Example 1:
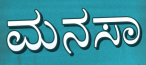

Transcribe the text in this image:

ಮನಸಾ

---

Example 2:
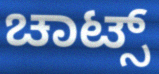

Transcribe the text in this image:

ಚಾಟ್ಸ್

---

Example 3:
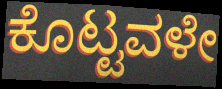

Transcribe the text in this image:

ಕೊಟ್ಟವಳೇ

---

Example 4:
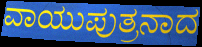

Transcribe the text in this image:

ವಾಯುಪುತ್ರನಾದ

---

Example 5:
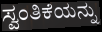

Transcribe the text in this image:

ಸ್ವಂತಿಕೆಯನ್ನು